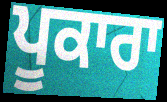
ਪੂਕਾਰਾ